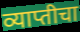
व्याप्तीचा